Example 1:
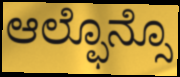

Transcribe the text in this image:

ಆಲ್ಫೊನ್ಸೊ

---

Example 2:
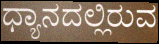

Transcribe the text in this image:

ಧ್ಯಾನದಲ್ಲಿರುವ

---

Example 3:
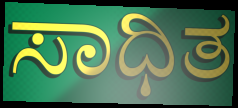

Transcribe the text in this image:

ಸಾಧಿತ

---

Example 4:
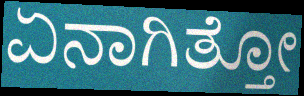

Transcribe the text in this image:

ಏನಾಗಿತ್ತೋ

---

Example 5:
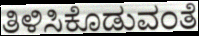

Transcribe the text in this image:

ತಿಳಿಸಿಕೊಡುವಂತೆ